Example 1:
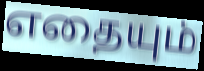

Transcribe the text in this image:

எதையும்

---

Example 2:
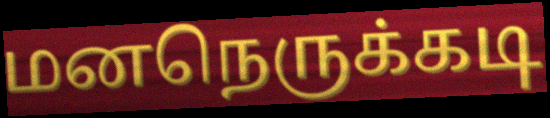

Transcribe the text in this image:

மனநெருக்கடி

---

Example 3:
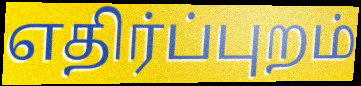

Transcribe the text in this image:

எதிர்ப்புறம்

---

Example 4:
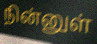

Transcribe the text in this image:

நின்னுள்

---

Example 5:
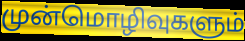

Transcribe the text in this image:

முன்மொழிவுகளும்